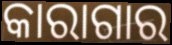
କାରାଗାର